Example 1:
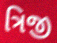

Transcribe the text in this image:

ત્રિજી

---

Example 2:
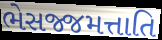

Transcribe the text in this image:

ભેસજ્જમત્તાતિ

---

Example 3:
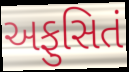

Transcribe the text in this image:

અફુસિતં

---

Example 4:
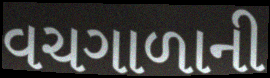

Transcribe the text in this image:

વચગાળાની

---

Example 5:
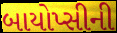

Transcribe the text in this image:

બાયોપ્સીની